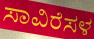
ಸಾವಿರೆಸಳ